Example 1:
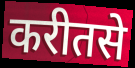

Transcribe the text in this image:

करीतसे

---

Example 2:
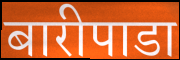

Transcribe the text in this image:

बारीपाडा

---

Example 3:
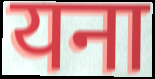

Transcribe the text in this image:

यना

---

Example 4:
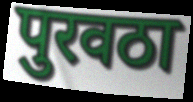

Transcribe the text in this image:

पुरवठा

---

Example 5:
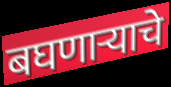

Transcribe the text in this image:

बघणाऱ्याचे